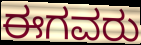
ಈಗವರು